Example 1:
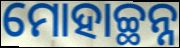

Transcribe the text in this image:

ମୋହାଚ୍ଛନ୍ନ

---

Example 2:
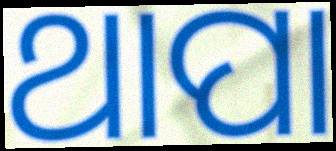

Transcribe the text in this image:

ଥାପା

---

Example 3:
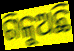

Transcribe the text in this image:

ଗିଳୁଅଛି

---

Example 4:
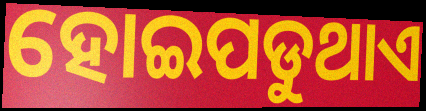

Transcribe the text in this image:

ହୋଇପଡୁଥାଏ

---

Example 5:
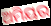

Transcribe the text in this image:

ଅମିୟର